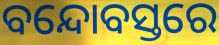
ବନ୍ଦୋବସ୍ତରେ